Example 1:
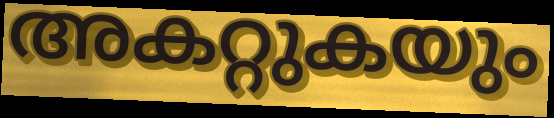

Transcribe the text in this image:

അകറ്റുകയും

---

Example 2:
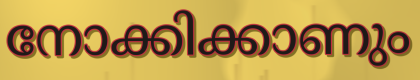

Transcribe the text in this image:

നോക്കിക്കാണും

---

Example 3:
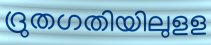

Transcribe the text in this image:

ദ്രുതഗതിയിലുളള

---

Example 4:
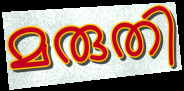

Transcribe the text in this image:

മരുതി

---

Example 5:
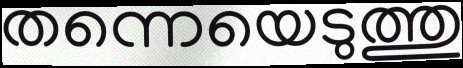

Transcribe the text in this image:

തന്നെയെടുത്തു